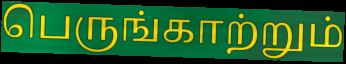
பெருங்காற்றும்